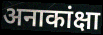
अनाकांक्षा